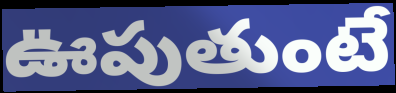
ఊపుతుంటే